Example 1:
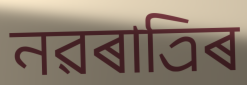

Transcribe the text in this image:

নৱৰাত্ৰিৰ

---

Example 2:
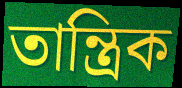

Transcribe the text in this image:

তান্ত্ৰিক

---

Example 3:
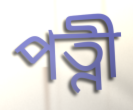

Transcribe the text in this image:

পত্নী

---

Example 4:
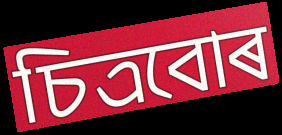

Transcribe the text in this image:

চিত্ৰবোৰ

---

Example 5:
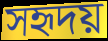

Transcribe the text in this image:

সহৃদয়